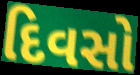
દિવસો